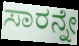
ಸಾರನ್ನೇ